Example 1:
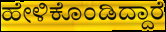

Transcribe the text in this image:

ಹೇಳಿಕೊಂಡಿದ್ದಾರೆ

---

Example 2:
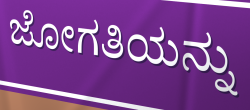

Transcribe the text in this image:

ಜೋಗತಿಯನ್ನು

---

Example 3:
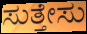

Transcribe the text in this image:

ಸುತ್ತೇಸು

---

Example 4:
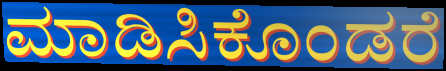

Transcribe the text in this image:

ಮಾಡಿಸಿಕೊಂಡರೆ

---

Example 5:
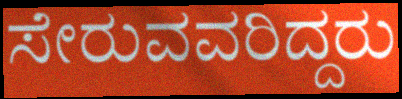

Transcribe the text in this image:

ಸೇರುವವರಿದ್ದರು